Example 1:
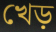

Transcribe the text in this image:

খেড়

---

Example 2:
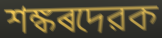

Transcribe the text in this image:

শঙ্কৰদেৱক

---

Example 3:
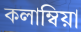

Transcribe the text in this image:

কলাম্বিয়া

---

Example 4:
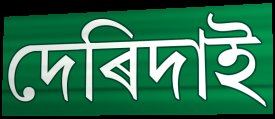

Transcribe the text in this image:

দেৰিদাই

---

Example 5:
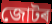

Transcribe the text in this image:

জোটৰ